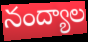
నంద్యాల